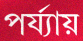
পৰ্য্যায়